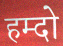
हम्दो